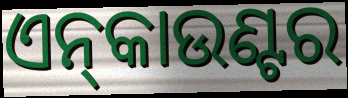
ଏନ୍‌କାଉଣ୍ଟର